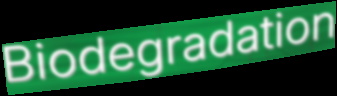
Biodegradation